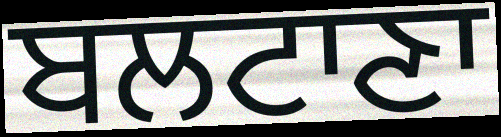
ਬਲਟਾਣਾ